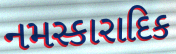
નમસ્કારાદિક